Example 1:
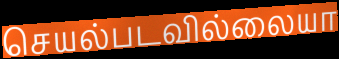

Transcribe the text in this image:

செயல்படவில்லையா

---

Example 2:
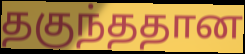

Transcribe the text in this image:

தகுந்ததான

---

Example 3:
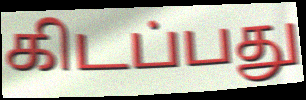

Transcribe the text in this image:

கிடப்பது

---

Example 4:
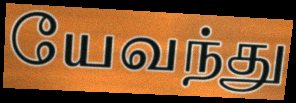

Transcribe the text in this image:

யேவந்து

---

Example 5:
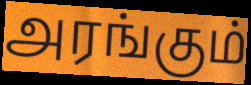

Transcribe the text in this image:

அரங்கும்